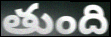
తుంది